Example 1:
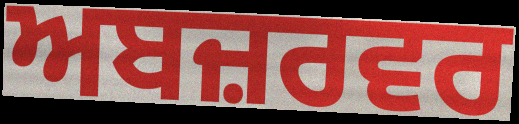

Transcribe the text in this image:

ਅਬਜ਼ਰਵਰ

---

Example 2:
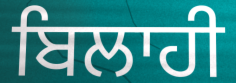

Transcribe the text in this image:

ਬਿਲਾਹੀ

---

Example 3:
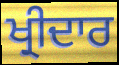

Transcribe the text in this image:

ਖ੍ਰੀਦਾਰ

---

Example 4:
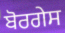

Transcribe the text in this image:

ਬੋਰਗੇਸ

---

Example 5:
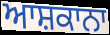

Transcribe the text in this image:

ਆਸ਼ਕਾਨਾ